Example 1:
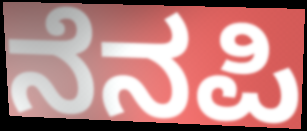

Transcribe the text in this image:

ನೆನಪಿ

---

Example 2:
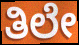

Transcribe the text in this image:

ತಿಲೇ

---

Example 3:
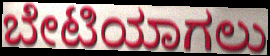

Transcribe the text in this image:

ಬೇಟಿಯಾಗಲು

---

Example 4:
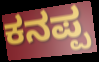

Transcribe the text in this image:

ಕನಪ್ಪ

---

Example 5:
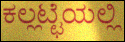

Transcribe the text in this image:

ಕಲ್ಲಟ್ಟೆಯಲ್ಲಿ